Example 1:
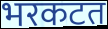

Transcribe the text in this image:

भरकटत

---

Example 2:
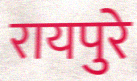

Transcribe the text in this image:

रायपुरे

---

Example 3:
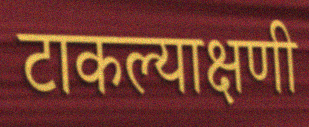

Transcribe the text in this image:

टाकल्याक्षणी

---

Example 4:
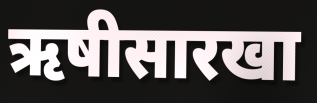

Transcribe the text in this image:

ऋषीसारखा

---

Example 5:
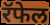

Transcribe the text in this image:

रॅफेल